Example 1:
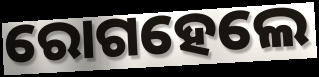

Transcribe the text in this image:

ରୋଗହେଲେ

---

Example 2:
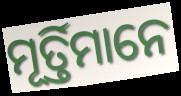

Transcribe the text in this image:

ମୂର୍ତ୍ତିମାନେ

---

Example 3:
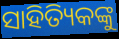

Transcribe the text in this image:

ସାହିତ୍ୟିକଙ୍କୁ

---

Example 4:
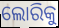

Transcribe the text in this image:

ଲୋରିକୁ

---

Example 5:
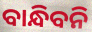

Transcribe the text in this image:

ବାନ୍ଧିବନି